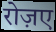
रोज़ए